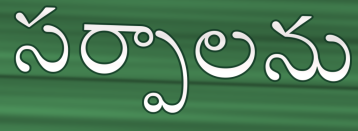
సర్పాలను